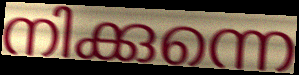
നിക്കുന്നെ